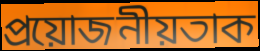
প্ৰয়োজনীয়তাক